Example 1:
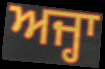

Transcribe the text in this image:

ਅਜ੍ਹਾ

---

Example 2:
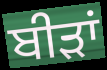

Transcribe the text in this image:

ਬੀੜਾਂ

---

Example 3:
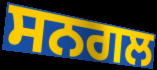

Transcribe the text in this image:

ਸਨਗਲ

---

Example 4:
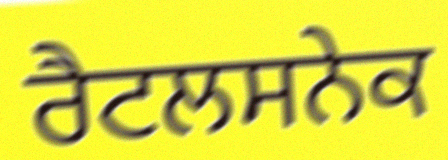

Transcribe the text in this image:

ਰੈਟਲਸਨੇਕ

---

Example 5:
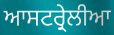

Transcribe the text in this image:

ਆਸਟਰ੍ਰੇਲੀਆ